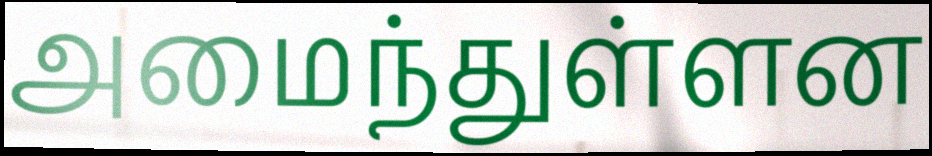
அமைந்துள்ளன